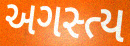
અગસ્ત્ય